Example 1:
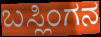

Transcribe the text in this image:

ಬಸ್ಲಿಂಗನ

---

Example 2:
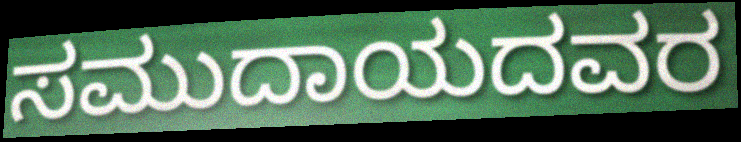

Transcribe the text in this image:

ಸಮುದಾಯದವರ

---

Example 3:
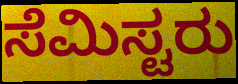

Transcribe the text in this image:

ಸೆಮಿಸ್ಟರು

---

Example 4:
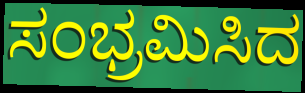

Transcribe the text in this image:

ಸಂಭ್ರಮಿಸಿದ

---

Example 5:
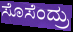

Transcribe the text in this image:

ಸೊಸೆಂದ್ರು